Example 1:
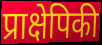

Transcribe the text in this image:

प्राक्षेपिकी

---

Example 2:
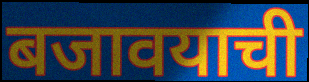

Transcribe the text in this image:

बजावयाची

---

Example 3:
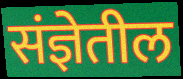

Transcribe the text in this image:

संज्ञेतील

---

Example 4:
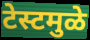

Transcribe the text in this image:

टेस्टमुळे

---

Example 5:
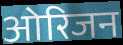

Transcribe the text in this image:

ओरिजन